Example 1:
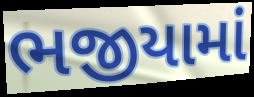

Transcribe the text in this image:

ભજીયામાં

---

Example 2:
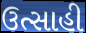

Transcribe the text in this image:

ઉત્સાહી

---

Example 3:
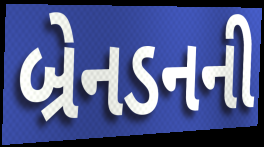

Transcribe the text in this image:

બ્રેનડનની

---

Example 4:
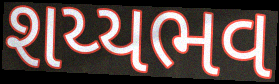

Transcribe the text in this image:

શય્યભવ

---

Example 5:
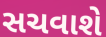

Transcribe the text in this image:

સચવાશે